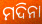
ମଦିନା